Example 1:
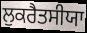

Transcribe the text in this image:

ਲੁਕਰੈਤਸੀਯਾ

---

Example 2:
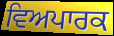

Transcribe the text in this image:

ਵਿਅਪਾਰਕ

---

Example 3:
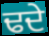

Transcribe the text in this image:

ਢਦੇ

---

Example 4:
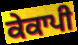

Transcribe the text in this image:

ਕੇਕਾਪੀ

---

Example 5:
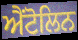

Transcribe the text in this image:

ਐਂਟੋਲਿਨ